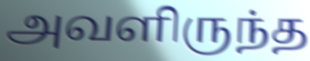
அவளிருந்த